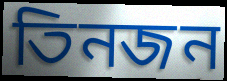
তিনজন